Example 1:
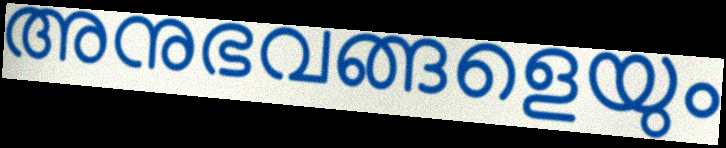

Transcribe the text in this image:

അനുഭവങ്ങളെയും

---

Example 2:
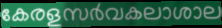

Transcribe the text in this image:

കേരളസർവകലാശാല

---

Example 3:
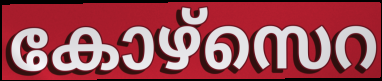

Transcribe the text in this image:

കോഴ്സെറ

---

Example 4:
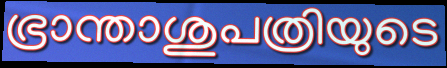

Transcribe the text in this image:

ഭ്രാന്താശുപത്രിയുടെ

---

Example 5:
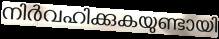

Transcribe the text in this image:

നിർവഹിക്കുകയുണ്ടായി